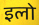
इलो